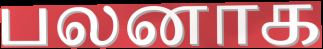
பலனாக